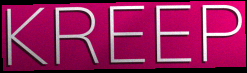
KREEP